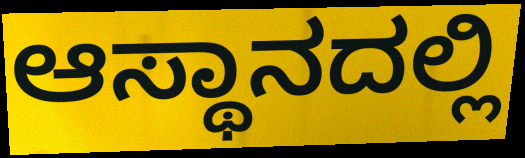
ಆಸ್ಥಾನದಲ್ಲಿ